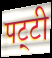
पट्‌टी